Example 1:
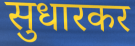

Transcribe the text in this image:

सुधारकर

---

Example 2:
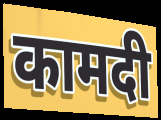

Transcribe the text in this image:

कामदी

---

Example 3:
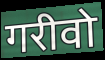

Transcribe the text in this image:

गरीवो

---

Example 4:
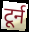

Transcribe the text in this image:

टूर्न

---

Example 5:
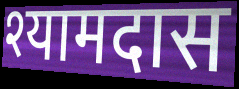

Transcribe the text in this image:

श्यामदास